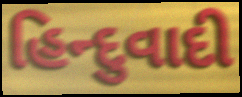
હિન્દુવાદી